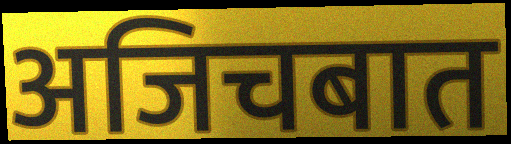
अजिचबात